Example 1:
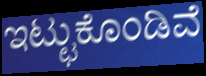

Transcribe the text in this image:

ಇಟ್ಟುಕೊಂಡಿವೆ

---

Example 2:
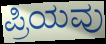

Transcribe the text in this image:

ಪ್ರಿಯವು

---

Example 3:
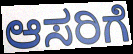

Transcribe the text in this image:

ಆಸರಿಗೆ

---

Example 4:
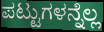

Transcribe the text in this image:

ಪಟ್ಟುಗಳನ್ನೆಲ್ಲ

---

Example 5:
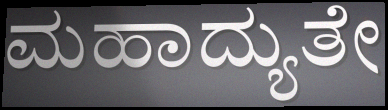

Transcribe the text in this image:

ಮಹಾದ್ಯುತೇ